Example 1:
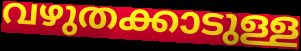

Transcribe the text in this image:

വഴുതക്കാടുള്ള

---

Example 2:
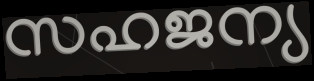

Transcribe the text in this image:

സഹജന്യ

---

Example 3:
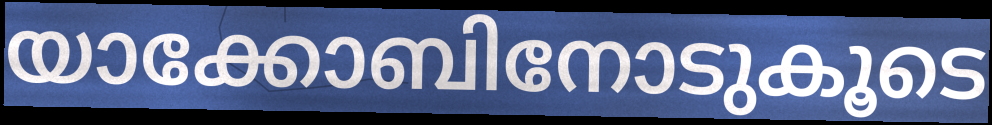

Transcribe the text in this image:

യാക്കോബിനോടുകൂടെ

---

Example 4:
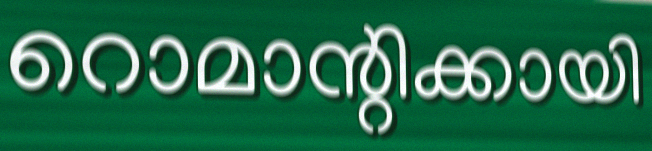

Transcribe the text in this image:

റൊമാന്റിക്കായി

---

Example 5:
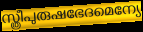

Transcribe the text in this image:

സ്ത്രീപുരുഷഭേദമെന്യേ